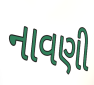
નાવણી